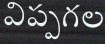
విప్పగల